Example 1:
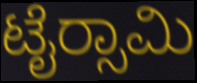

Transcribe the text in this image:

ಟೈರ‍್ಸಾಮಿ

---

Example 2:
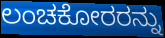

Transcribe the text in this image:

ಲಂಚಕೋರರನ್ನು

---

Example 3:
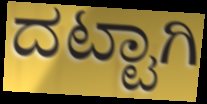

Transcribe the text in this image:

ದಟ್ಟಾಗಿ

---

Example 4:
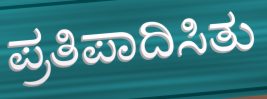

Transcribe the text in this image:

ಪ್ರತಿಪಾದಿಸಿತು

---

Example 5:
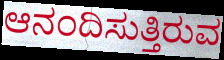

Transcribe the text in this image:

ಆನಂದಿಸುತ್ತಿರುವ